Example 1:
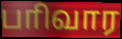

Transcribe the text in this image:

பரிவார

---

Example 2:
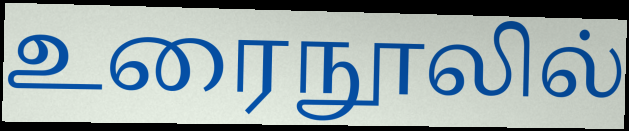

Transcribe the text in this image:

உரைநூலில்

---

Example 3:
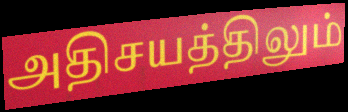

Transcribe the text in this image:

அதிசயத்திலும்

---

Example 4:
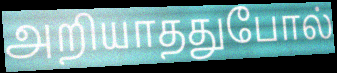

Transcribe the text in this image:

அறியாததுபோல்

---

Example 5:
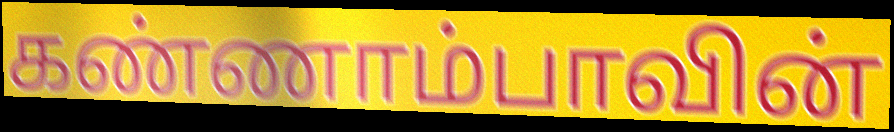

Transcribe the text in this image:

கண்ணாம்பாவின்